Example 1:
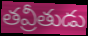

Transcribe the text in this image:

తవ్రీతుడు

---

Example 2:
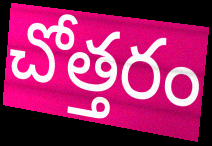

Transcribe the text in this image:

చోత్తరం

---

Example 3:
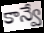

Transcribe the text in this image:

కాన్వే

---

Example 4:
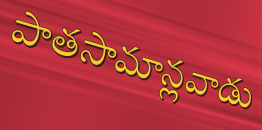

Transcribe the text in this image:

పాతసామాన్లవాడు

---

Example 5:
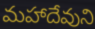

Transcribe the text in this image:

మహాదేవుని